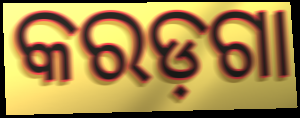
କରଡ଼ଗା